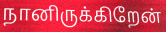
நானிருக்கிறேன்